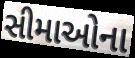
સીમાઓના